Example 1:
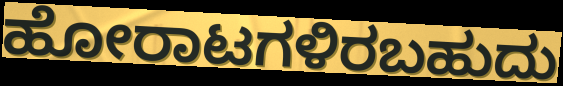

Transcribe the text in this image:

ಹೋರಾಟಗಳಿರಬಹುದು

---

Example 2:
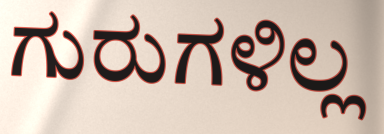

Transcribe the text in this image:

ಗುರುಗಳಿಲ್ಲ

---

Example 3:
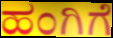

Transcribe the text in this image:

ಹಂಗಿಗೆ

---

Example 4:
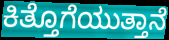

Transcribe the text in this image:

ಕಿತ್ತೊಗೆಯುತ್ತಾನೆ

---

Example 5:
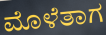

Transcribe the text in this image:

ಮೊಳೆತಾಗ